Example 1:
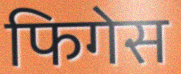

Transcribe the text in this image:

फिगेस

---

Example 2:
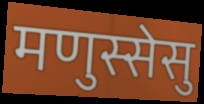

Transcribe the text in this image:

मणुस्सेसु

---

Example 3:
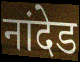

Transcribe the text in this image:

नांदेड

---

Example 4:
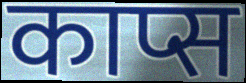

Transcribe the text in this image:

काप्स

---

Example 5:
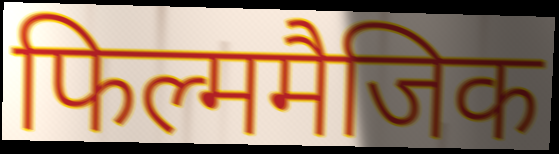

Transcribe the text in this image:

फिल्ममैजिक